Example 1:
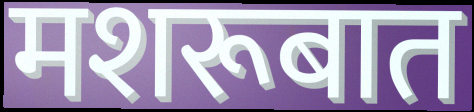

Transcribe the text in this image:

मशरूबात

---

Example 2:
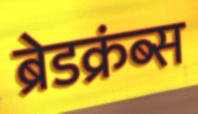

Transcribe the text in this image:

ब्रेडक्रंब्स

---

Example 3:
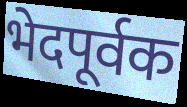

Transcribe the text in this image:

भेदपूर्वक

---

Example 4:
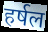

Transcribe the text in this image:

हर्षल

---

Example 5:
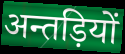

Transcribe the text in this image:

अन्तड़ियों